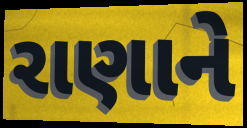
રાણાને